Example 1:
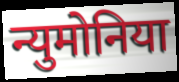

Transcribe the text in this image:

न्युमोनिया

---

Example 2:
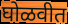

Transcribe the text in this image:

घोळवीत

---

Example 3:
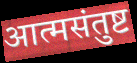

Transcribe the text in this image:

आत्मसंतुष्ट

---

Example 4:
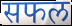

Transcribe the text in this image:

सफल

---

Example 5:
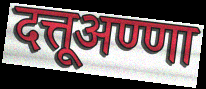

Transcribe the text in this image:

दत्तूअण्णा